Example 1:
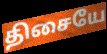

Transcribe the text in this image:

திசையே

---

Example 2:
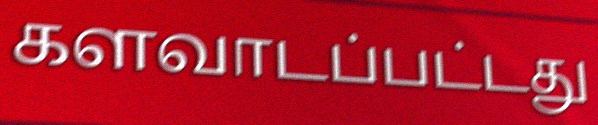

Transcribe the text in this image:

களவாடப்பட்டது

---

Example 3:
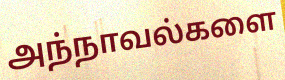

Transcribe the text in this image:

அந்நாவல்களை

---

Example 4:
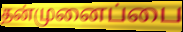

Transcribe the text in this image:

தன்முனைப்பை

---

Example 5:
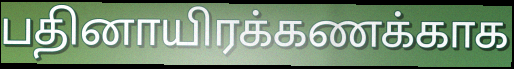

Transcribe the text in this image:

பதினாயிரக்கணக்காக